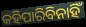
କହିପାରିବିନାହିଁ